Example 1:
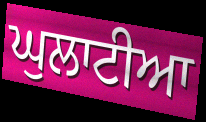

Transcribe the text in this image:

ਘੁਲਾਟੀਆ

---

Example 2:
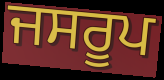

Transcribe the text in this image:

ਜਸਰੂਪ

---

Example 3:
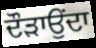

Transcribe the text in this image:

ਦੌੜਾਉਂਦਾ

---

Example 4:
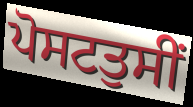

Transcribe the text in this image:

ਪੋਸਟਤੁਸੀਂ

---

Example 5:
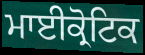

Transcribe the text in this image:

ਮਾਈਕ੍ਰੋਟਿਕ